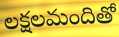
లక్షలమందితో